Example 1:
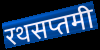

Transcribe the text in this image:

रथसप्तमी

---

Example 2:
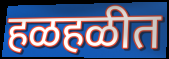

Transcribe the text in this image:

हळहळीत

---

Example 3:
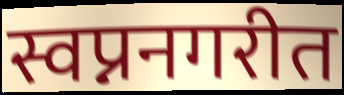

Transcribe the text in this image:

स्वप्ननगरीत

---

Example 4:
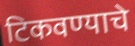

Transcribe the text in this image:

टिकवण्याचे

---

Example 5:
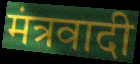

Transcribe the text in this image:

मंत्रवादी